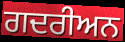
ਗਦਰੀਅਨ